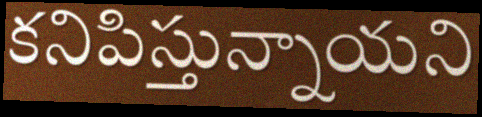
కనిపిస్తున్నాయని